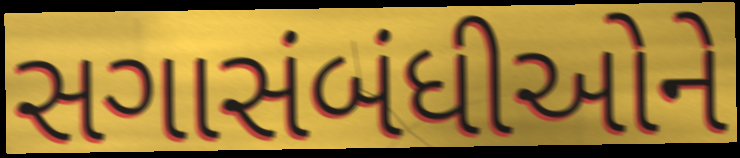
સગાસંબંધીઓને